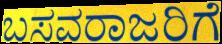
ಬಸವರಾಜರಿಗೆ